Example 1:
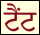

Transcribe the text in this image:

ਟੈਂਟ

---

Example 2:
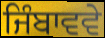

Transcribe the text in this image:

ਜਿੰਬਾਵਵੇ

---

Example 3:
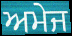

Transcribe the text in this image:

ਅਮੇਜ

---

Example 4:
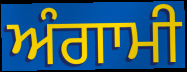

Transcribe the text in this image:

ਅੰਗਾਮੀ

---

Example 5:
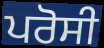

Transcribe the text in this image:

ਪਰੋਸੀ